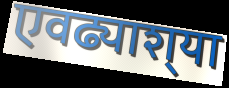
एवढ्याश्या